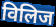
विलिज